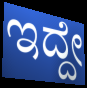
ಇದ್ದೇ